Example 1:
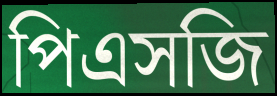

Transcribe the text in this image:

পিএসজি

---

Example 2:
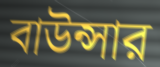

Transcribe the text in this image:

বাউন্সার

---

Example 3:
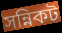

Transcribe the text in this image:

সন্নিকট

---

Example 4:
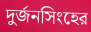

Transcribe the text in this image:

দুর্জনসিংহের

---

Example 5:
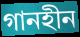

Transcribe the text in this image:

গানহীন